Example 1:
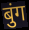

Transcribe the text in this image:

बुंग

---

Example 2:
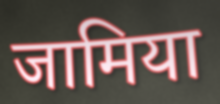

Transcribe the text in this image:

जामिया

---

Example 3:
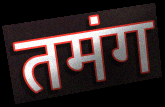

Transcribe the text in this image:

तमंग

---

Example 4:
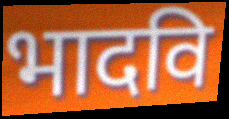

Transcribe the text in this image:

भादवि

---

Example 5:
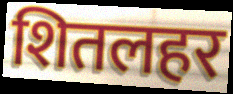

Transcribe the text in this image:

शितलहर